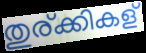
തുര്ക്കികള്